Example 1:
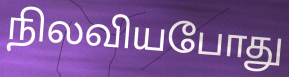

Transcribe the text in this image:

நிலவியபோது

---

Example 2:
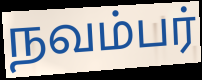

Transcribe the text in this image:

நவம்பர்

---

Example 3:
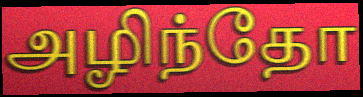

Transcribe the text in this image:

அழிந்தோ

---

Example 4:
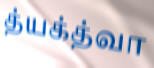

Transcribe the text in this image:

த்யக்த்வா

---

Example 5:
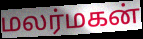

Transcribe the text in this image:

மலர்மகன்